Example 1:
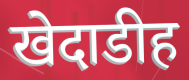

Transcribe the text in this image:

खेदाडीह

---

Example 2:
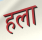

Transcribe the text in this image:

हला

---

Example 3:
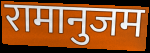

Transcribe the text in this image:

रामानुजम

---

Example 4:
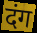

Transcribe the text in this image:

दंग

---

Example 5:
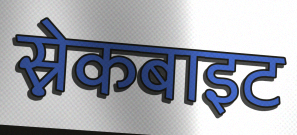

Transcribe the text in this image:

स्नेकबाइट